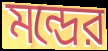
মন্দ্রের